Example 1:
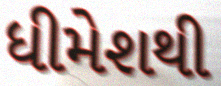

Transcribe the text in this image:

ધીમેશથી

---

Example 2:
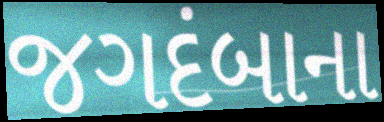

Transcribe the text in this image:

જગદંબાના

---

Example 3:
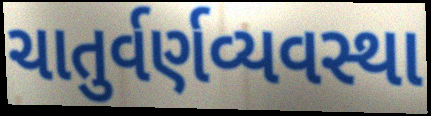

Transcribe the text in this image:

ચાતુર્વર્ણવ્યવસ્થા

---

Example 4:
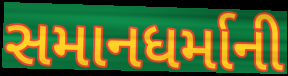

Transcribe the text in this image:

સમાનધર્માની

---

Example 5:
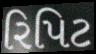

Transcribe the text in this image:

રિપિટ